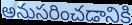
అనుసరించడానికి